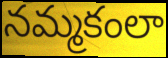
నమ్మకంలా